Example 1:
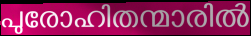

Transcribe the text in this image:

പുരോഹിതന്മാരിൽ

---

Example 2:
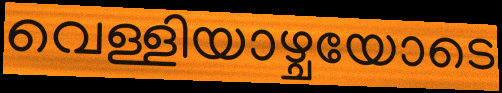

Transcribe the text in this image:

വെള്ളിയാഴ്ചയോടെ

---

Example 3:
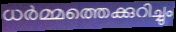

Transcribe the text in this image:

ധർമ്മത്തെക്കുറിച്ചും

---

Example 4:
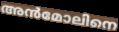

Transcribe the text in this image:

അൻമോലിനെ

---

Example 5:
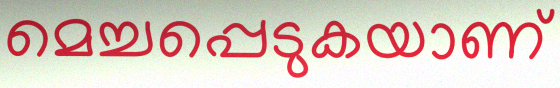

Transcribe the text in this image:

മെച്ചപ്പെടുകയാണ്